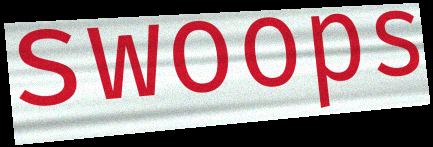
swoops